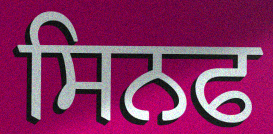
ਸਿਨਫ